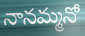
నానమ్మనో